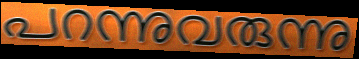
പറന്നുവരുന്നു